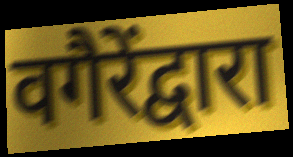
वगैरेंद्वारा